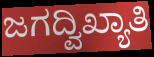
ಜಗದ್ವಿಖ್ಯಾತಿ